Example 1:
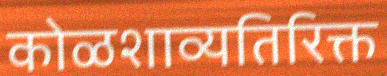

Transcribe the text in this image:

कोळशाव्यतिरिक्त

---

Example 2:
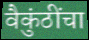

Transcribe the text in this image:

वैकुंठींचा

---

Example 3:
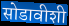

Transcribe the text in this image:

सोडावीशी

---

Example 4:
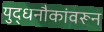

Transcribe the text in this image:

युद्धनौकांवरून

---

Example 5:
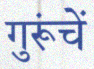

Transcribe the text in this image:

गुरूंचें